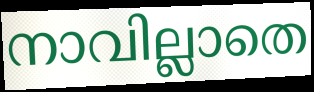
നാവില്ലാതെ